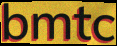
bmtc